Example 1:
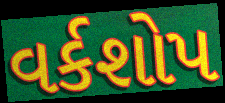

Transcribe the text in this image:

વર્કશોપ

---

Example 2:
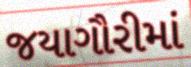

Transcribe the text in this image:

જયાગૌરીમાં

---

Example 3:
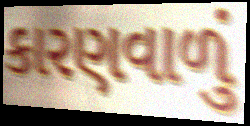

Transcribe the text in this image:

કારણવાળું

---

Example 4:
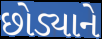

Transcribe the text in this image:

છોડ્યાને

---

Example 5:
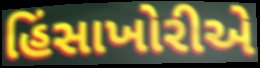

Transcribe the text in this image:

હિંસાખોરીએ